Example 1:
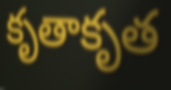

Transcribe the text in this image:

కృతాకృత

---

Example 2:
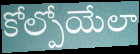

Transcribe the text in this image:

కోల్పోయేలా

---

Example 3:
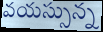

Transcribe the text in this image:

వయస్సున్న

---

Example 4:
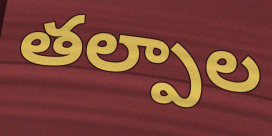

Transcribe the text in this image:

తల్పాల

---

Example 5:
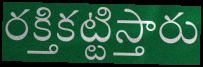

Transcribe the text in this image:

రక్తికట్టిస్తారు